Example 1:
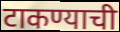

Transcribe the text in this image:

टाकण्याची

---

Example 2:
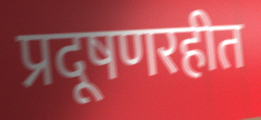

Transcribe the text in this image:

प्रदूषणरहीत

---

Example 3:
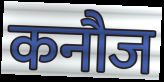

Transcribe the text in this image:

कनौज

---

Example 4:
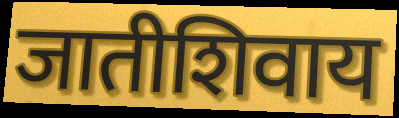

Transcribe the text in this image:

जातीशिवाय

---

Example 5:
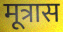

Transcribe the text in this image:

मूत्रास